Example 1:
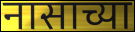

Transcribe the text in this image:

नासाच्या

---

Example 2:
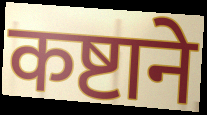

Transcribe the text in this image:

कष्टाने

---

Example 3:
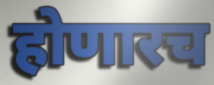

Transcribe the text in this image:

होणारच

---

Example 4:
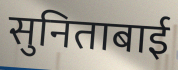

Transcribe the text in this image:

सुनिताबाई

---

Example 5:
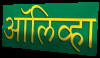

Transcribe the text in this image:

ऑलिव्हा